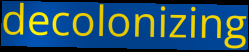
decolonizing